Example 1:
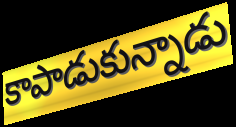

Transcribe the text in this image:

కాపాడుకున్నాడు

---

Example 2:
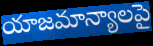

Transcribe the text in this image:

యాజమాన్యాలపై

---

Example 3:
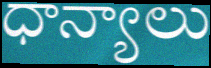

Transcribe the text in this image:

ధాన్యాలు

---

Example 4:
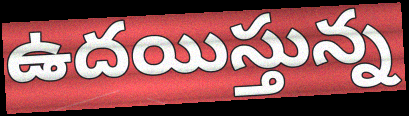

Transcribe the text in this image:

ఉదయిస్తున్న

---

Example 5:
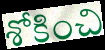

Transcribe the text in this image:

శోకించి